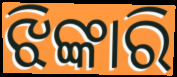
ଝିଙ୍କାରି